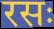
रसः